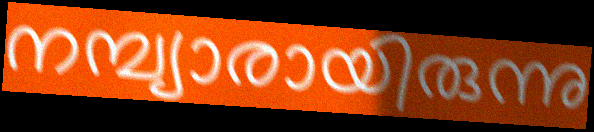
നമ്പ്യാരായിരുന്നു